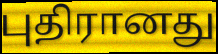
புதிரானது